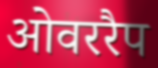
ओवररैप